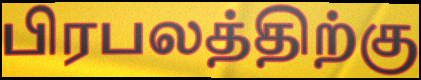
பிரபலத்திற்கு